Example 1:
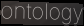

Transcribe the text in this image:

ontology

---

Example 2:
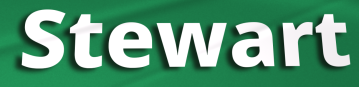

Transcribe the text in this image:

Stewart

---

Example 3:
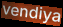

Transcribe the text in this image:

vendiya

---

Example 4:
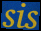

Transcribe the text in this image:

sis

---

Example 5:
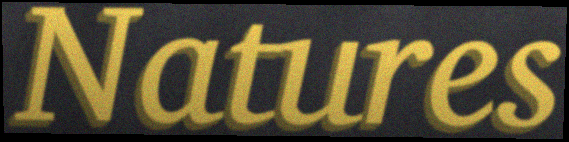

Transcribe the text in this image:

Natures